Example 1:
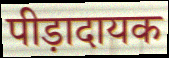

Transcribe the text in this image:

पीड़ादायक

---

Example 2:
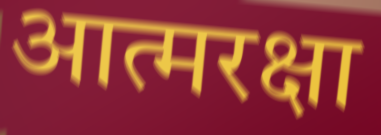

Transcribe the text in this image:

आत्मरक्षा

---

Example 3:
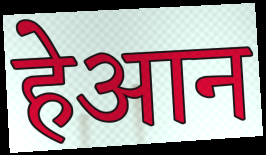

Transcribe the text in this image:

हेआन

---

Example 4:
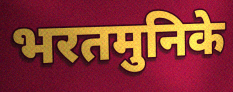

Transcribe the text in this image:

भरतमुनिके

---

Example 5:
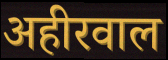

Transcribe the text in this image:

अहीरवाल